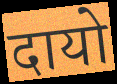
दायो